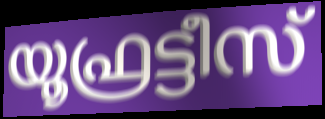
യൂഫ്രട്ടീസ്